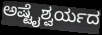
ಅಷ್ಟೈಶ್ವರ್ಯದ